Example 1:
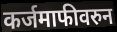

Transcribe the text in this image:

कर्जमाफीवरुन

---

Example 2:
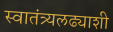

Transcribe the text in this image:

स्वातंत्र्यलढ्याशी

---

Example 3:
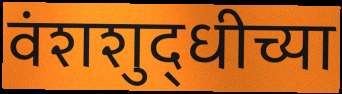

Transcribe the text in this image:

वंशशुद्धीच्या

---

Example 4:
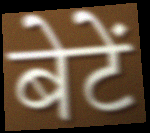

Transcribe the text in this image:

बेटें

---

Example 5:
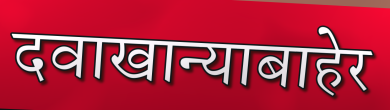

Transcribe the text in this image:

दवाखान्याबाहेर